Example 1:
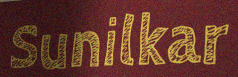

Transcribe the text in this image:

Sunilkar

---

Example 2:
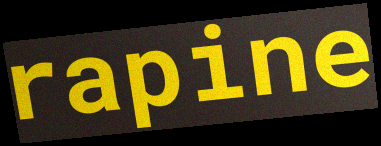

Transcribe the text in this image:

rapine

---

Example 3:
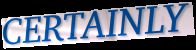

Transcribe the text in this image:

CERTAINLY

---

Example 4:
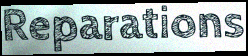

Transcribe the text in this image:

Reparations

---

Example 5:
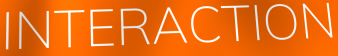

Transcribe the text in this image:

INTERACTION